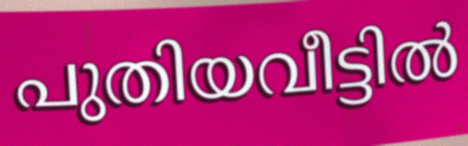
പുതിയവീട്ടിൽ